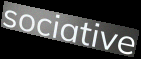
sociative